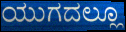
ಯುಗದಲ್ಲೂ